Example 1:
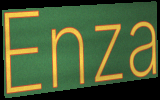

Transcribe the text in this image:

Enza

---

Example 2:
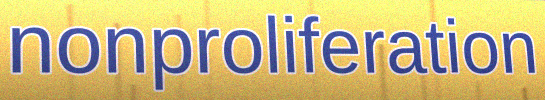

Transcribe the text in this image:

nonproliferation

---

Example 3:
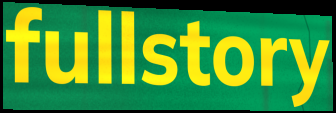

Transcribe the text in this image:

fullstory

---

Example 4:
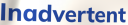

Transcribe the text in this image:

Inadvertent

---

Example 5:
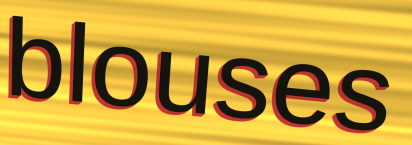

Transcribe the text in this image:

blouses